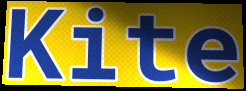
Kite